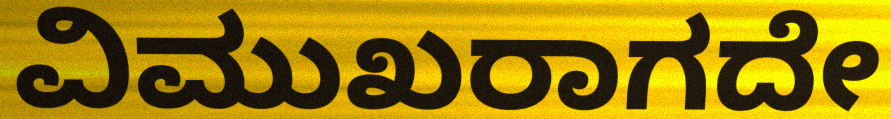
ವಿಮುಖರಾಗದೇ